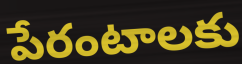
పేరంటాలకు